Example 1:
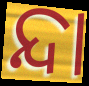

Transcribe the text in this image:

ନ୍ଦା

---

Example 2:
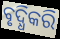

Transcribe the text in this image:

ବୃଦ୍ଧିକରି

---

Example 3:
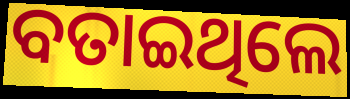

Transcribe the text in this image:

ବତାଇଥିଲେ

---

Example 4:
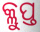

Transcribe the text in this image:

କ୍ଲୁପ୍ତ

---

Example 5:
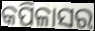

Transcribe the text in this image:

କପିଳାସର